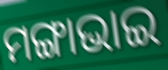
ମଙ୍ଗାଭାଇ